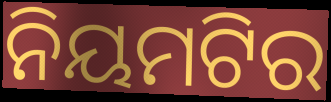
ନିୟମଟିର